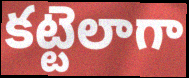
కట్టెలాగా